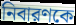
নিবারণকে